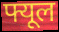
फ्यूल